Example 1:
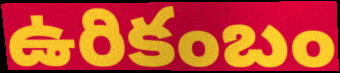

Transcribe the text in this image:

ఉరికంబం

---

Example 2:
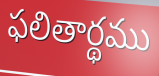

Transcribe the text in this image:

ఫలితార్థము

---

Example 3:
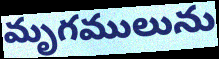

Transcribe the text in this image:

మృగములును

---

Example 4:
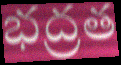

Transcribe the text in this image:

భద్రత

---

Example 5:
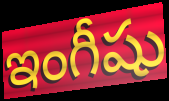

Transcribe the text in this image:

ఇంగీషు